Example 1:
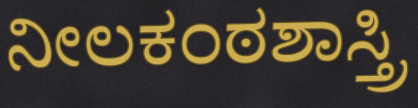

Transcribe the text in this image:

ನೀಲಕಂಠಶಾಸ್ತ್ರಿ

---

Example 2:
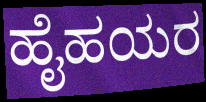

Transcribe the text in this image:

ಹೈಹಯರ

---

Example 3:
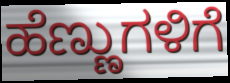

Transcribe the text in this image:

ಹೆಣ್ಣುಗಳಿಗೆ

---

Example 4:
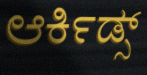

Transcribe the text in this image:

ಆರ್ಕಿಡ್ಸ್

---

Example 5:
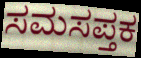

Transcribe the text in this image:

ಸಮಸಪ್ತಕ